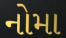
નોમા